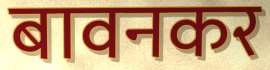
बावनकर